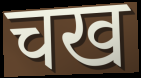
चख